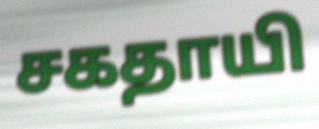
சகதாயி